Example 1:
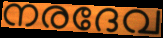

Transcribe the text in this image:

നരദേവ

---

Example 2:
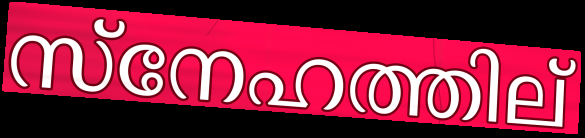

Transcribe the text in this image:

സ്നേഹത്തില്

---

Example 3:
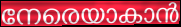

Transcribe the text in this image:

നേരെയാകാൻ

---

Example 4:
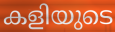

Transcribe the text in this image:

കളിയുടെ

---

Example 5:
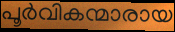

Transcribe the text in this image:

പൂർവികന്മാരായ